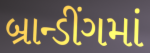
બ્રાન્ડીંગમાં